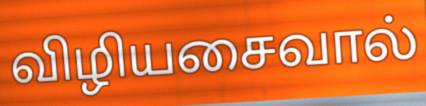
விழியசைவால்